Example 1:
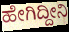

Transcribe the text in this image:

ಹೇಗಿದ್ದೀನಿ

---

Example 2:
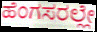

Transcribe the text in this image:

ಹೆಂಗಸರಲ್ಲೇ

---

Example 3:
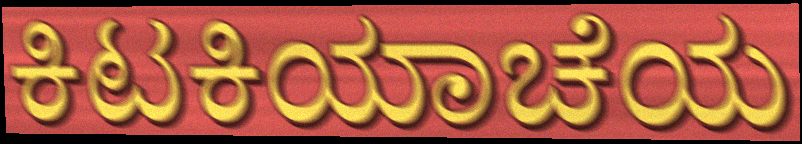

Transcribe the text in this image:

ಕಿಟಕಿಯಾಚೆಯ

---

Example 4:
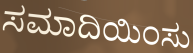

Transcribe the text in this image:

ಸಮಾದಿಯಿಂಸು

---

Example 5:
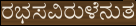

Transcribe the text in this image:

ರಭಸವಿರುಳೆನುತ